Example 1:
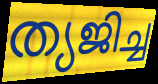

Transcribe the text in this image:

ത്യജിച്ച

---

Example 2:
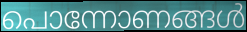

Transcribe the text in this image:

പൊന്നോണങ്ങൾ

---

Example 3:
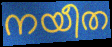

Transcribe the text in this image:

നയീത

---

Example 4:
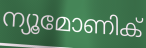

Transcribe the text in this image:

ന്യൂമോണിക്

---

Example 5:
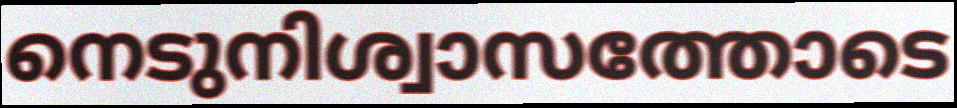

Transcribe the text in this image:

നെടുനിശ്വാസത്തോടെ